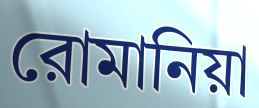
রোমানিয়া